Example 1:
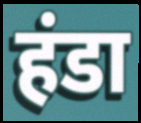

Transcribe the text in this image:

हंडा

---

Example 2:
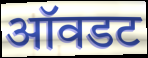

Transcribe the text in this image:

ऑवडट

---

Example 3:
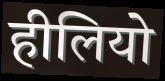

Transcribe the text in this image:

हीलियो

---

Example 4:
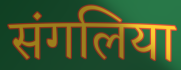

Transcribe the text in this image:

संगलिया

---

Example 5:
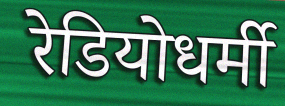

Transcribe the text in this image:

रेडियोधर्मी